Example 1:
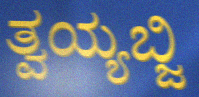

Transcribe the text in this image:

ತ್ವಯ್ಯಬ್ಜಿ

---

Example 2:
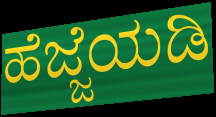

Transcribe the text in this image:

ಹೆಜ್ಜೆಯಡಿ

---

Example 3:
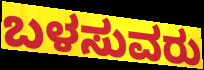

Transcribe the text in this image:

ಬಳಸುವರು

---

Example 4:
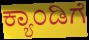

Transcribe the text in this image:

ಕ್ಯಾಂಡಿಗೆ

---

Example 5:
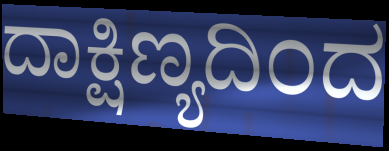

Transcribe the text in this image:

ದಾಕ್ಷಿಣ್ಯದಿಂದ